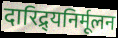
दारिद्र्यनिर्मूलन